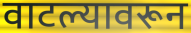
वाटल्यावरून